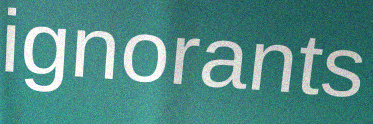
ignorants